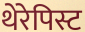
थेरेपिस्ट